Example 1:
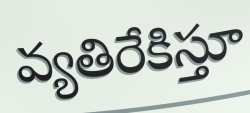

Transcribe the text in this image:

వ్యతిరేకిస్తూ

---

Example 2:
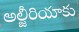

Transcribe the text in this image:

అల్జీరియాకు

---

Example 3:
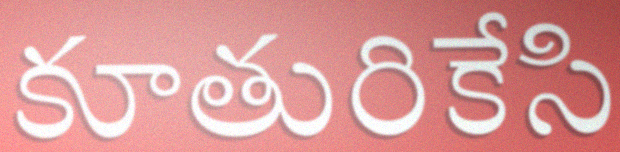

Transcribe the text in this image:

కూతురికేసి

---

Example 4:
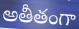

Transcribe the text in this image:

అతీతంగా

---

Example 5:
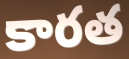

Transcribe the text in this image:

కారత